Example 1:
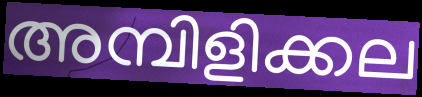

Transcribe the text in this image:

അമ്പിളിക്കല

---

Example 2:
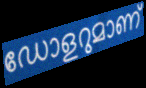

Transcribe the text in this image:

ഡോളറുമാണ്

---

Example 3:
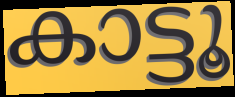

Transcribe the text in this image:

കാട്ടൂ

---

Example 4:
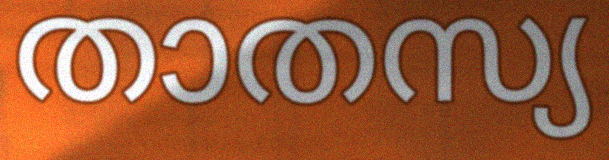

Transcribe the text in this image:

താതസ്യ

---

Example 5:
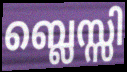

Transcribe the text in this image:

ബ്ലെസ്സി